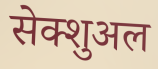
सेक्शुअल